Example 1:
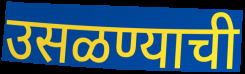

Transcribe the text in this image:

उसळण्याची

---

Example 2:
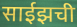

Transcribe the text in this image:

साईझची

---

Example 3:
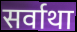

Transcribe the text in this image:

सर्वाथा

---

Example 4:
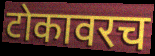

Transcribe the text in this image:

टोकावरच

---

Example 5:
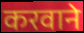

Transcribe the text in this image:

करवाने